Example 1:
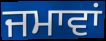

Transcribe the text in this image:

ਜਮਾਵਾਂ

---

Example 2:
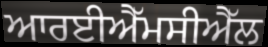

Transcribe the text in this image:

ਆਰਈਐੱਮਸੀਐੱਲ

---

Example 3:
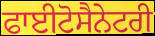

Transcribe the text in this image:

ਫਾਈਟੋਸੈਨੇਟਰੀ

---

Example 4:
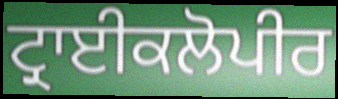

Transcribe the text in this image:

ਟ੍ਰਾਈਕਲੋਪੀਰ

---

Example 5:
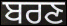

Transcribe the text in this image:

ਬਰਣ